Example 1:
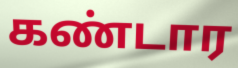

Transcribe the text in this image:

கண்டார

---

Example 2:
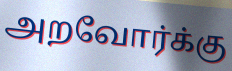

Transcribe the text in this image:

அறவோர்க்கு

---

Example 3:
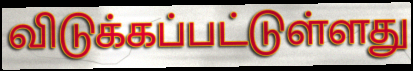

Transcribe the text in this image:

விடுக்கப்பட்டுள்ளது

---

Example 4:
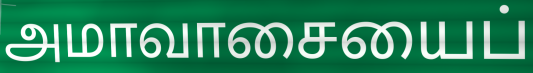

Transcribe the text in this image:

அமாவாசையைப்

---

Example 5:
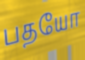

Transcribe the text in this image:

பதயோ